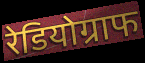
रेडियोग्राफ